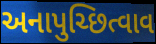
અનાપુચ્છિત્વાવ